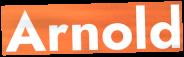
Arnold